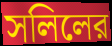
সলিলের